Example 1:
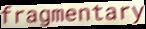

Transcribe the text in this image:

fragmentary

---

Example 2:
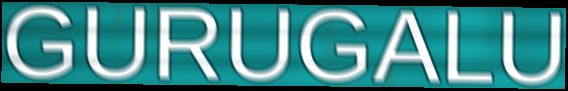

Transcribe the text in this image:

GURUGALU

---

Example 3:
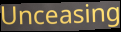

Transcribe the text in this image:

Unceasing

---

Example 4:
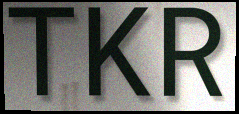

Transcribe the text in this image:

TKR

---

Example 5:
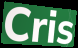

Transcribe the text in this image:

Cris